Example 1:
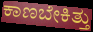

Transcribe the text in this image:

ಕಾಣಬೇಕಿತ್ತು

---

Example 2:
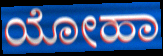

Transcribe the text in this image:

ಯೋಹಾ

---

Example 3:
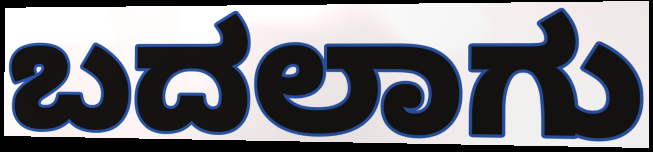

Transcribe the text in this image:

ಬದಲಾಗು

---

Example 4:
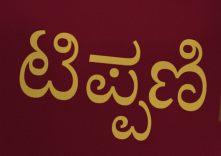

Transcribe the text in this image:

ಟಿಪ್ಪಣಿ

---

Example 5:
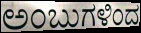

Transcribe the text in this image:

ಅಂಬುಗಳಿಂದ